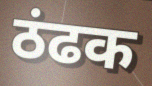
ठंढक